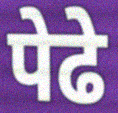
पेढे